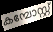
കമ്പോസ്റ്റ്